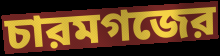
চারমগজের